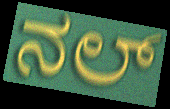
ನಲ್